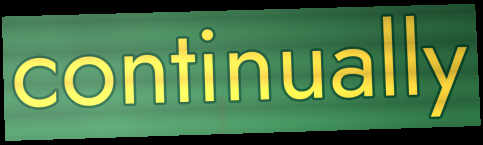
continually